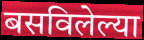
बसविलेल्या